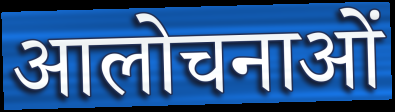
आलोचनाओं